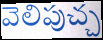
వెలిపుచ్చ